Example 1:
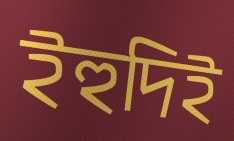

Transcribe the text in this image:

ইহুদিই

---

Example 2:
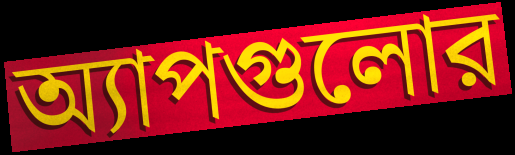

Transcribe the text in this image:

অ্যাপগুলোর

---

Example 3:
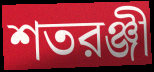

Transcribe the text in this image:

শতরঞ্জী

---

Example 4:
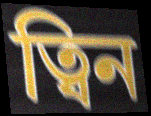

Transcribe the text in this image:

ত্বিন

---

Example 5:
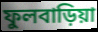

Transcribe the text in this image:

ফুলবাড়িয়া